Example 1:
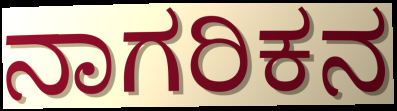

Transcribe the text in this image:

ನಾಗರಿಕನ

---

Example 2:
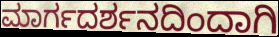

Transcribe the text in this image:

ಮಾರ್ಗದರ್ಶನದಿಂದಾಗಿ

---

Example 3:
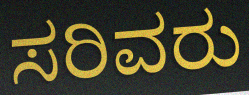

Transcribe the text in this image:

ಸರಿವರು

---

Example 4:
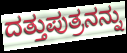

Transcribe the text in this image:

ದತ್ತುಪುತ್ರನನ್ನು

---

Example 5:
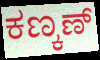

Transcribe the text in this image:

ಕಣ್ಕಣ್